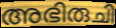
അഭിരുചി